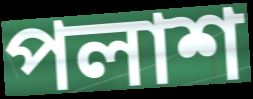
পলাশ